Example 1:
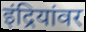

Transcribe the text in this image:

इंद्रियांवर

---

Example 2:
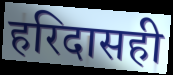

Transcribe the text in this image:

हरिदासही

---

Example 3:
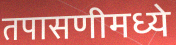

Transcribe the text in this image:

तपासणीमध्ये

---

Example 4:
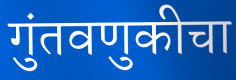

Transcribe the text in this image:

गुंतवणुकीचा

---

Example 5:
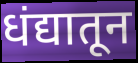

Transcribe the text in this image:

धंद्यातून